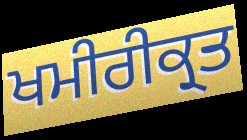
ਖਮੀਰੀਕ੍ਰਤ